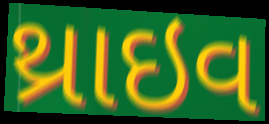
થ્રાઇવ